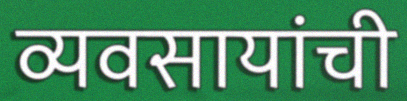
व्यवसायांची